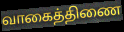
வாகைத்திணை